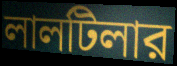
লালটিলার